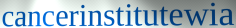
cancerinstitutewia